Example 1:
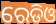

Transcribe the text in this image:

ରେଡିଓ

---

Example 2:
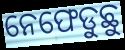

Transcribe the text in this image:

ନେଫେଡୁଛୁ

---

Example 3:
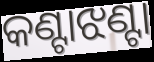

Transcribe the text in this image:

କଣ୍ଟାଝଣ୍ଟା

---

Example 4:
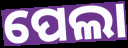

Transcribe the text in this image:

ପେଲା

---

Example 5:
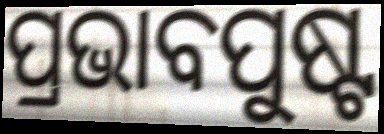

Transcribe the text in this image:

ପ୍ରଭାବପୁଷ୍ଟ